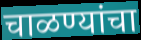
चाळण्यांचा